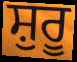
ਸ਼ੁਰੂ